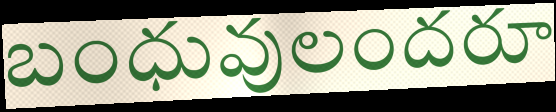
బంధువులందరూ